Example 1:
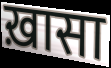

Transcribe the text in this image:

ख़ासा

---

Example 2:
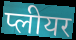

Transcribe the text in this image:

प्लीयर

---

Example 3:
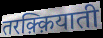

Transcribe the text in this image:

तरक़्क़ियाती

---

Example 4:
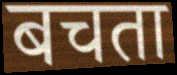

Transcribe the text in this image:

बचता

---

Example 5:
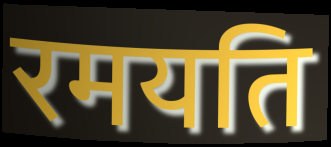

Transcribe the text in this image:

रमयति